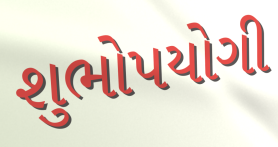
શુભોપયોગી